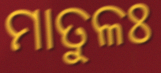
ମାତୁଳଃ